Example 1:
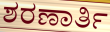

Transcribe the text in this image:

ಶರಣಾರ್ತಿ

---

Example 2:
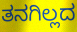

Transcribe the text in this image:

ತನಗಿಲ್ಲದ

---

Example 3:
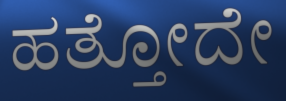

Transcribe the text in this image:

ಹತ್ತೋದೇ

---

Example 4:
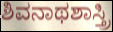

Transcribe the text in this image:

ಶಿವನಾಥಶಾಸ್ತ್ರಿ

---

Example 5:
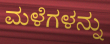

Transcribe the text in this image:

ಮಳೆಗಳನ್ನು